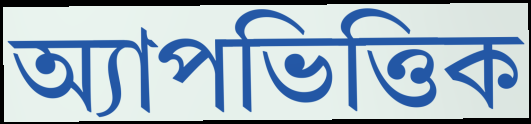
অ্যাপভিত্তিক